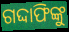
ଗଦ୍ଦାଫିଙ୍କୁ